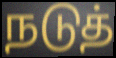
நடுத்